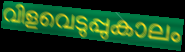
വിളവെടുപ്പുകാലം